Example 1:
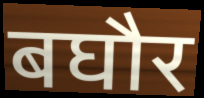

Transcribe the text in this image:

बघौर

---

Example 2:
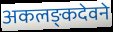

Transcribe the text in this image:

अकलङ्कदेवने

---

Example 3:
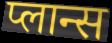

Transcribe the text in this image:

प्लान्स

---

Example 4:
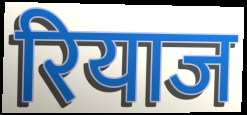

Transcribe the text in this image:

रियाज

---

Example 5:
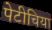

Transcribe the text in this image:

पेटीचिया